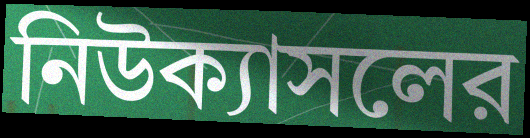
নিউক্যাসলের